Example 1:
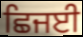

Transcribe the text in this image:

ਛਿਜਈ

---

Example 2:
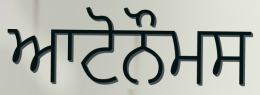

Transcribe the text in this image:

ਆਟੋਨੌਮਸ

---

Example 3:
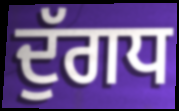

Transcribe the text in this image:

ਦੁੱਗਧ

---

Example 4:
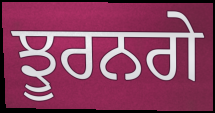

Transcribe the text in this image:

ਝੂਰਨਗੇ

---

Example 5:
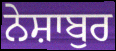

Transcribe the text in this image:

ਨੇਸ਼ਾਬੁਰ